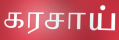
கரசாய்